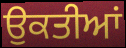
ਉਕਤੀਆਂ